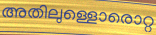
അതിലുള്ളൊരൊറ്റ